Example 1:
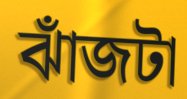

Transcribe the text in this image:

ঝাঁজটা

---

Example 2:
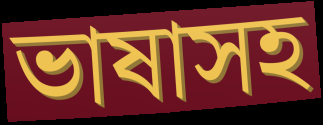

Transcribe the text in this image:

ভাষাসহ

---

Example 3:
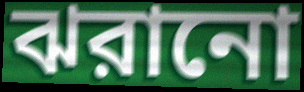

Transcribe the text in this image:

ঝরানো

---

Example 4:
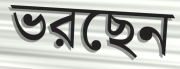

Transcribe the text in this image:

ভরছেন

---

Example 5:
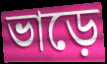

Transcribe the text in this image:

ভাড়ে